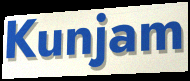
Kunjam